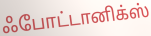
ஃபோட்டானிக்ஸ்